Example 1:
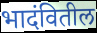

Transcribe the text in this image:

भादंवितील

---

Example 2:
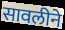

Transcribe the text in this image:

सावलीने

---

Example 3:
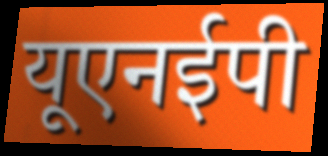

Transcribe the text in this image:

यूएनईपी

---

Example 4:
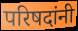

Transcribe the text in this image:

परिषदांनी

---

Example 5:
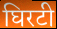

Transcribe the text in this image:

घिरटी